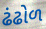
ઢંઢોળ